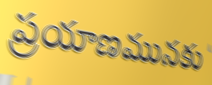
ప్రయాణమునకు